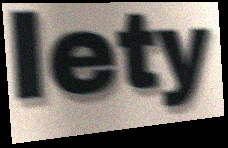
lety